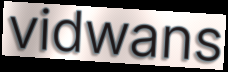
vidwans